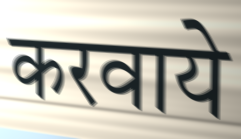
करवाये